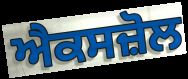
ਐਕਸਜ਼ੋਲ